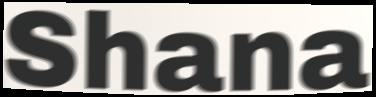
Shana